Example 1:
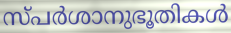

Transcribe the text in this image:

സ്പർശാനുഭൂതികൾ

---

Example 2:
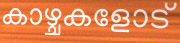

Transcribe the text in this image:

കാഴ്ചകളോട്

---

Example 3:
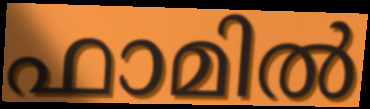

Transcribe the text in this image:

ഫാമിൽ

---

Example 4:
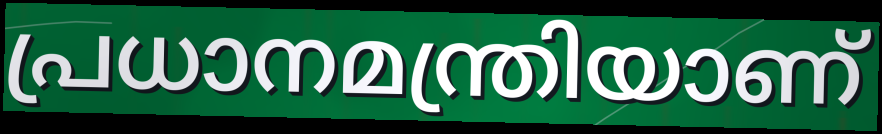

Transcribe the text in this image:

പ്രധാനമന്ത്രിയാണ്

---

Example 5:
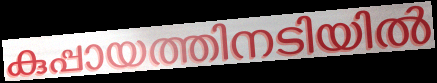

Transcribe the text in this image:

കുപ്പായത്തിനടിയിൽ